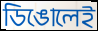
ডিঙোলেই